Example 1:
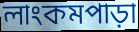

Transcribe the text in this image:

লাংকমপাড়া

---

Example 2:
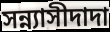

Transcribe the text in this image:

সন্ন্যাসীদাদা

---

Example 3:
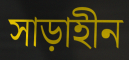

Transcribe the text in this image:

সাড়াহীন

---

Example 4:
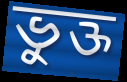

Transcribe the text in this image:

ভুক্ত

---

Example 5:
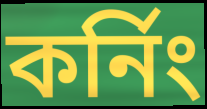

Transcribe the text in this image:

কর্নিং